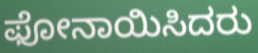
ಫೋನಾಯಿಸಿದರು